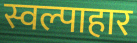
स्वल्पाहार